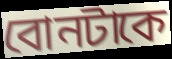
বোনটাকে